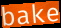
bake